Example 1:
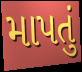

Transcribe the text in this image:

માપતું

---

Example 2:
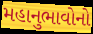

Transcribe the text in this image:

મહાનુભાવોનો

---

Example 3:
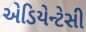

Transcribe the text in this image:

એડિયેન્ટેસી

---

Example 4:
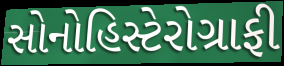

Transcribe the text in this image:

સોનોહિસ્ટેરોગ્રાફી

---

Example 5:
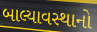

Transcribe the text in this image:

બાલ્યાવસ્થાનો